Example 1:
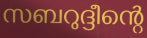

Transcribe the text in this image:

സബറുദ്ദീന്റെ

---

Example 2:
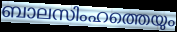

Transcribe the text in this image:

ബാലസിംഹത്തെയും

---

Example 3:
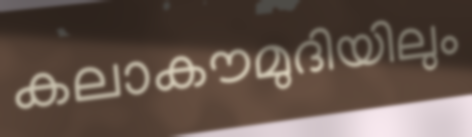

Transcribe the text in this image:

കലാകൗമുദിയിലും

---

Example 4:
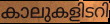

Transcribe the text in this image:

കാലുകളിടറി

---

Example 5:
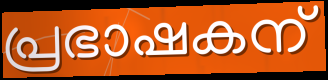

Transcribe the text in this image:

പ്രഭാഷകന്